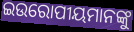
ଇଉରୋପୀୟମାନଙ୍କୁ